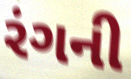
રંગની